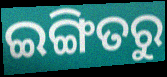
ଇଙ୍ଗିତରୁ